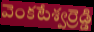
వెంకటేశ్వర్రెడ్డి